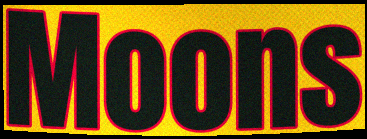
Moons